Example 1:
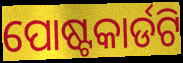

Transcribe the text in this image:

ପୋଷ୍ଟକାର୍ଡଟି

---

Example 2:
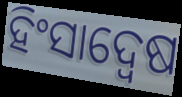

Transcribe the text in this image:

ହିଂସାଦ୍ୱେଷ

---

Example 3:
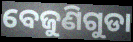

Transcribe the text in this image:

ବେଜୁଣିଗୁଡା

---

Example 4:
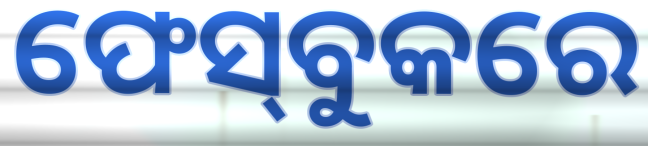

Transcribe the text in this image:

ଫେସ୍‌ବୁକରେ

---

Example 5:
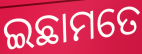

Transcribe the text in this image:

ଇଛାମତେ